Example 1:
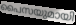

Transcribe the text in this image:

പൈസയുമായി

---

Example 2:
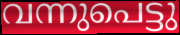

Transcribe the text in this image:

വന്നുപെട്ടു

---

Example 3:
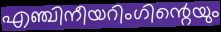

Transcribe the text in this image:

എഞ്ചിനീയറിംഗിന്റെയും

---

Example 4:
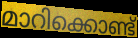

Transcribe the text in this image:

മാറിക്കൊണ്ട്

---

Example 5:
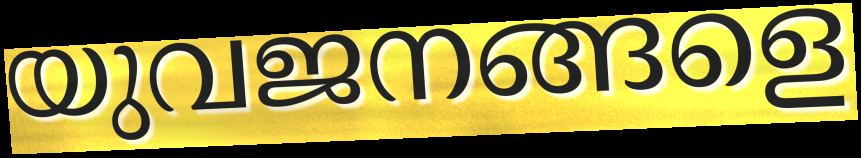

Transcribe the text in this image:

യുവജനങ്ങളെ